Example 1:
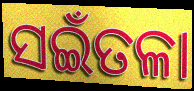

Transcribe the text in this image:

ସଇଁତଳା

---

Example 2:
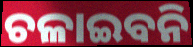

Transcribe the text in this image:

ଚଳାଇବନି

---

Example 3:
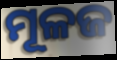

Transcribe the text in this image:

ମୂଳଜ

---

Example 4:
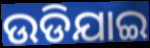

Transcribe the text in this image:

ଉଡିଯାଇ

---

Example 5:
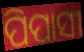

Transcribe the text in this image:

ପିପାସୀ